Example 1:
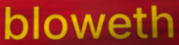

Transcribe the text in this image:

bloweth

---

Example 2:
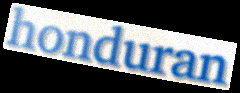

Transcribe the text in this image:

honduran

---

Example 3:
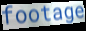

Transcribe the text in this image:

footage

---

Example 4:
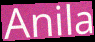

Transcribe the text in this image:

Anila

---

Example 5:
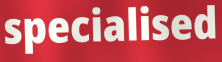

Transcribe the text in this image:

specialised